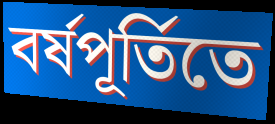
বর্ষপূর্তিতে